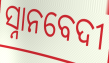
ସ୍ନାନବେଦୀ